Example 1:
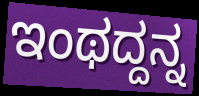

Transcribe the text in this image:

ಇಂಥದ್ದನ್ನ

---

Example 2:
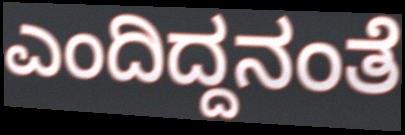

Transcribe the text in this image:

ಎಂದಿದ್ದನಂತೆ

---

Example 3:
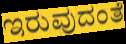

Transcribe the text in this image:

ಇರುವುದಂತೆ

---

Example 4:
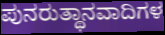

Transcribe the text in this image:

ಪುನರುತ್ಥಾನವಾದಿಗಳ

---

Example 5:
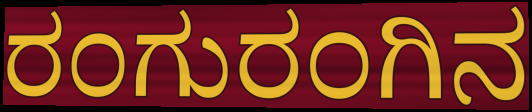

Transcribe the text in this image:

ರಂಗುರಂಗಿನ